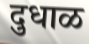
दुधाळ